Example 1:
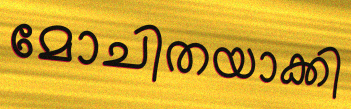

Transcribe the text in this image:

മോചിതയാക്കി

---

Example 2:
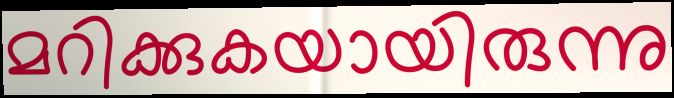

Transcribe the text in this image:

മറിക്കുകയായിരുന്നു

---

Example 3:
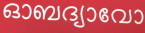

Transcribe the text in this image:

ഓബദ്യാവോ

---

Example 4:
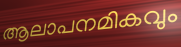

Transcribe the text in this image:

ആലാപനമികവും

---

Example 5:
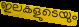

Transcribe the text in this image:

ഇലകളുടെയും